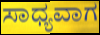
ಸಾಧ್ಯವಾಗ